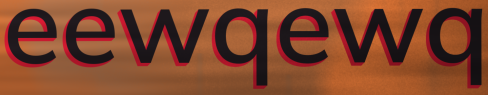
eewqewq